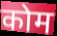
कोम